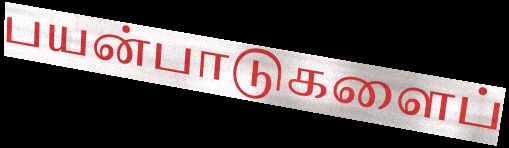
பயன்பாடுகளைப்